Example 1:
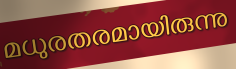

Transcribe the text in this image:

മധുരതരമായിരുന്നു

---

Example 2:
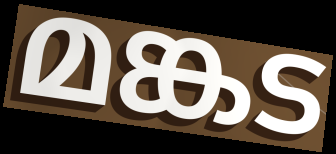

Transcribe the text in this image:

മങ്കട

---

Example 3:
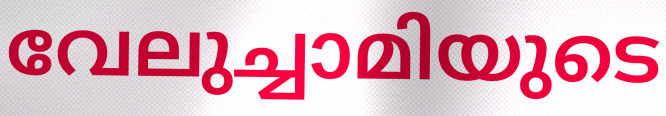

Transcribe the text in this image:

വേലുച്ചാമിയുടെ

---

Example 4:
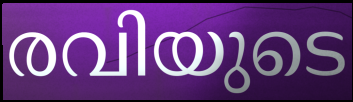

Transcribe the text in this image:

രവിയുടെ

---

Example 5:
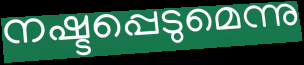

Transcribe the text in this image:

നഷ്ടപ്പെടുമെന്നു